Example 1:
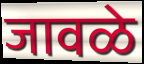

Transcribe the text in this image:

जावळे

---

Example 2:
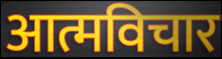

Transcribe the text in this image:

आत्मविचार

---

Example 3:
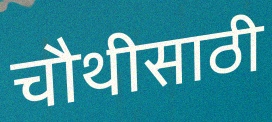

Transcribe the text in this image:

चौथीसाठी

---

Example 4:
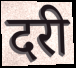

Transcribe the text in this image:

दरी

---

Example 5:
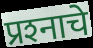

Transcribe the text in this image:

प्रश्‍नाचे